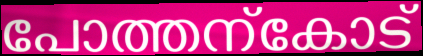
പോത്തന്കോട്